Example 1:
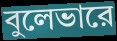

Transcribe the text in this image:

বুলেভারে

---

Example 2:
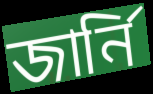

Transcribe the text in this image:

জার্নি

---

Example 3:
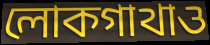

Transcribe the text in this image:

লোকগাথাও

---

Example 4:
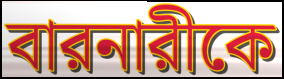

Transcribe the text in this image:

বারনারীকে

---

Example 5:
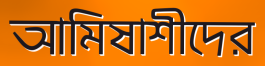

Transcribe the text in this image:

আমিষাশীদের